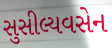
સુસીલ્યવસેન